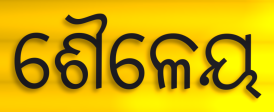
ଶୈଳେୟ